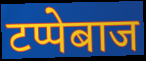
टप्पेबाज